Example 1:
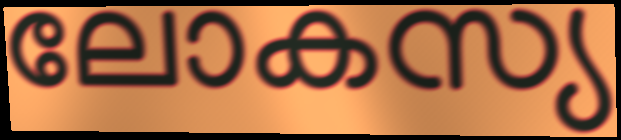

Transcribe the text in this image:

ലോകസ്യ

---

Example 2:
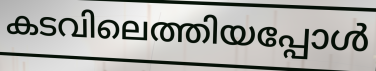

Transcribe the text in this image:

കടവിലെത്തിയപ്പോൾ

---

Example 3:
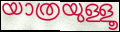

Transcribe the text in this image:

യാത്രയുള്ളൂ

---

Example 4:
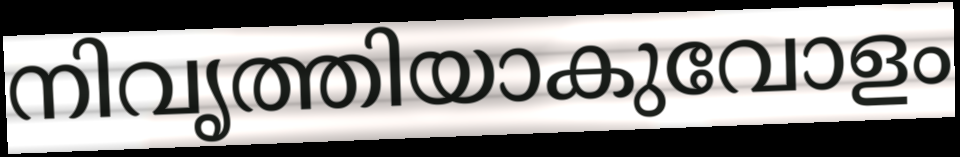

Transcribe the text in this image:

നിവൃത്തിയാകുവോളം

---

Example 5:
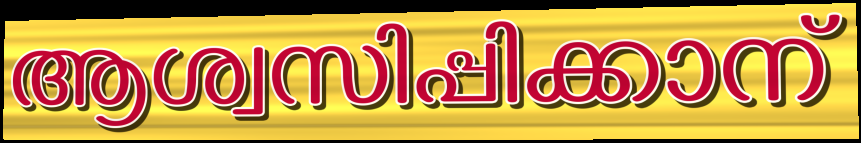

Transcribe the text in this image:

ആശ്വസിപ്പിക്കാന്